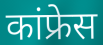
कांफ्रेस